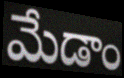
మేడాం